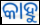
କାହୁ